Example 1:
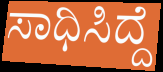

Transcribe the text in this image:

ಸಾಧಿಸಿದ್ದೆ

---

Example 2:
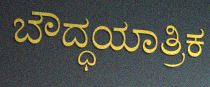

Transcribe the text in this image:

ಬೌದ್ಧಯಾತ್ರಿಕ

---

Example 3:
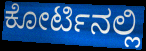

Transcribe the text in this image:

ಕೋರ್ಟಿನಲ್ಲಿ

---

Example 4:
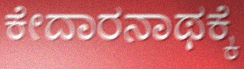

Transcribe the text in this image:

ಕೇದಾರನಾಥಕ್ಕೆ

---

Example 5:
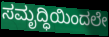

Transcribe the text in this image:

ಸಮೃದ್ಧಿಯಿಂದಲೇ